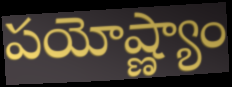
పయోష్ణ్యాం